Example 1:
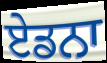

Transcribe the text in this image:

ਏਡਨਾ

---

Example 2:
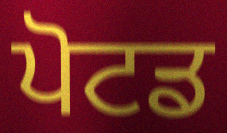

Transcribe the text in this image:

ਪੋਟਡ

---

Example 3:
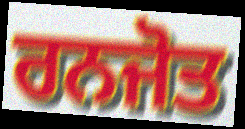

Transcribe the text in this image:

ਰਨਜੋਤ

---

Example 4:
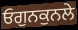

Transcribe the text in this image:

ਓਗੁਨਕੁਨਲੇ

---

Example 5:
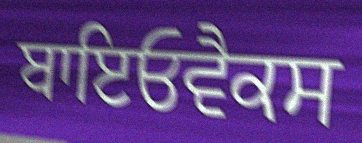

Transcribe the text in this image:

ਬਾਇਓਵੈਕਸ